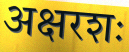
अक्षरशः